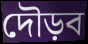
দৌড়ব